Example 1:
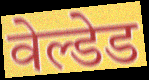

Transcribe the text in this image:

वेल्डेड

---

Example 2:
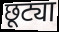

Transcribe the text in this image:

छूट्या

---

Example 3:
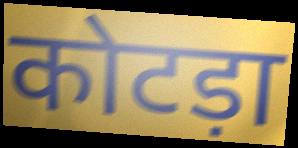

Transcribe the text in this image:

कोटड़ा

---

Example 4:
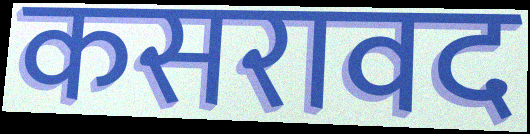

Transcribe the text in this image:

कसरावद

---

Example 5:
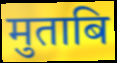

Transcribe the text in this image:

मुताबि